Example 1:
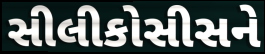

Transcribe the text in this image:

સીલીકોસીસને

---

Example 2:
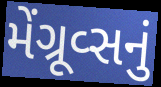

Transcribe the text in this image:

મેંગ્રૂવ્સનું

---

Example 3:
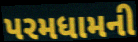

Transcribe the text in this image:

પરમધામની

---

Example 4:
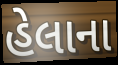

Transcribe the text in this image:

હેલાના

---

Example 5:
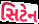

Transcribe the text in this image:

સિટેન